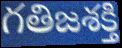
గతిజశక్తి